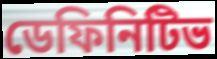
ডেফিনিটিভ